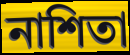
নাশিতা